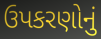
ઉપકરણોનું